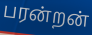
பரன்றன்